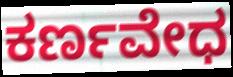
ಕರ್ಣವೇಧ